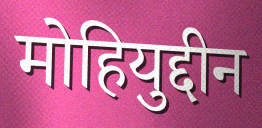
मोहियुद्दीन